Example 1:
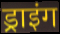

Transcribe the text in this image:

ड्राइंग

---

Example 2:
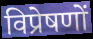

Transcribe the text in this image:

विप्रेषणों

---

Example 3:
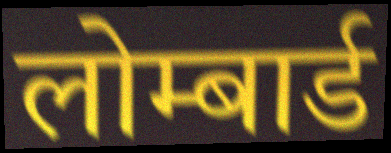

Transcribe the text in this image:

लोम्बार्ड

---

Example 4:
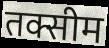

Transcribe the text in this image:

तक्सीम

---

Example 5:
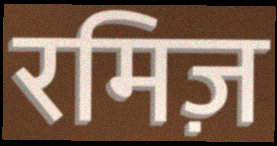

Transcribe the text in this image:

रमिज़